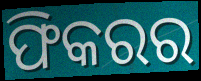
ଫିକରର